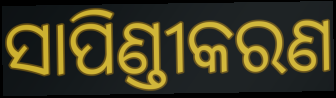
ସାପିଣ୍ଡୀକରଣ